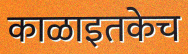
काळाइतकेच